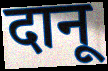
दानू